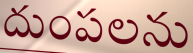
దుంపలను